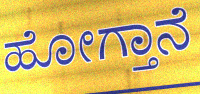
ಹೋಗ್ತಾನೆ